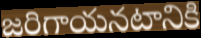
జరిగాయనటానికి